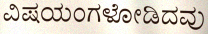
ವಿಷಯಂಗಳೋಡಿದವು